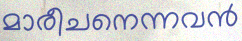
മാരീചനെന്നവൻ